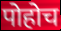
पोहोच